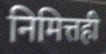
निमित्तही